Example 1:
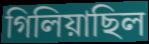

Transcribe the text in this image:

গিলিয়াছিল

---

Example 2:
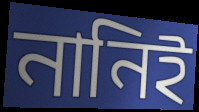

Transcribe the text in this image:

নানিই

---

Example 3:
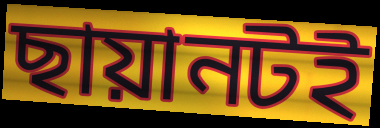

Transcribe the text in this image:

ছায়ানটই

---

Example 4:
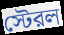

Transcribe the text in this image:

স্টেরল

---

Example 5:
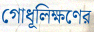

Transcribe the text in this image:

গোধূলিক্ষণের